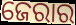
ଜେରାର